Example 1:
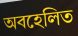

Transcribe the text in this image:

অবহেলিত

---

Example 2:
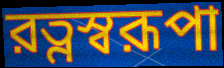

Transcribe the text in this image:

রত্নস্বরূপা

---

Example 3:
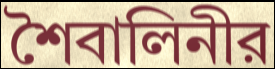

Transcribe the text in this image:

শৈবালিনীর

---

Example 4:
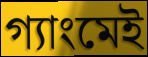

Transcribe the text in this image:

গ্যাংমেই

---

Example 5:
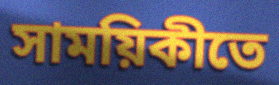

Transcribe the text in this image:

সাময়িকীতে